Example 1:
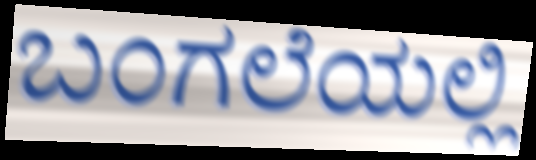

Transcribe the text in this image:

ಬಂಗಲೆಯಲ್ಲಿ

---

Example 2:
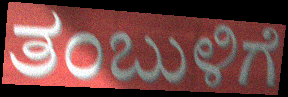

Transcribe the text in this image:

ತಂಬುಳಿಗೆ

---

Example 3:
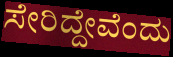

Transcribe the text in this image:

ಸೇರಿದ್ದೇವೆಂದು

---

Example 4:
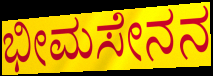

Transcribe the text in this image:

ಭೀಮಸೇನನ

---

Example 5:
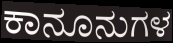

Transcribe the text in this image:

ಕಾನೂನುಗಳ